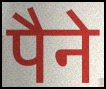
पैने